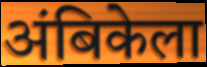
अंबिकेला